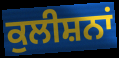
ਕੁਲੀਸ਼ਨਾਂ